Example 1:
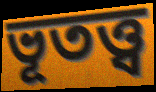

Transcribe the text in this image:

ভূতত্ত্ব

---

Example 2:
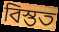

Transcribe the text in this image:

বিস্তত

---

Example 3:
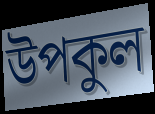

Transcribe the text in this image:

উপকুল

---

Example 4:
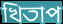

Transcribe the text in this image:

খিতাপ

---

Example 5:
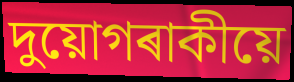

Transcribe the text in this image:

দুয়োগৰাকীয়ে